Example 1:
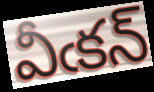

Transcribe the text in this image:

వీఁకన్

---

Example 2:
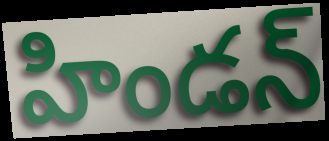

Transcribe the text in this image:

హిండన్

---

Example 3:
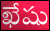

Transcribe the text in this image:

ఖేషు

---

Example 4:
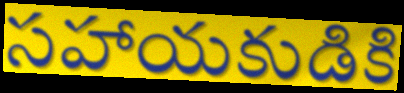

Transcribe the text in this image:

సహాయకుడికి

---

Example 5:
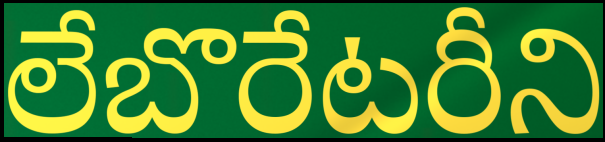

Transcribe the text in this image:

లేబొరేటరీని